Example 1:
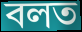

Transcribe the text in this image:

বলত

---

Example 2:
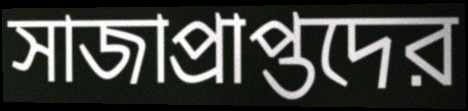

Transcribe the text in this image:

সাজাপ্রাপ্তদের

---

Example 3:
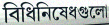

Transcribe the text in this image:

বিধিনিষেধগুলো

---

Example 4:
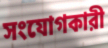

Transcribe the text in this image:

সংযোগকারী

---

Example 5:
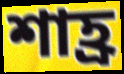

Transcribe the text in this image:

শাহ্র